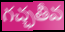
గచ్ఛతీవ